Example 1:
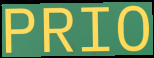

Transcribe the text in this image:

PRIO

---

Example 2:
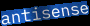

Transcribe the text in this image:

antisense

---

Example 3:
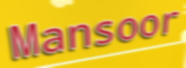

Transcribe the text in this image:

Mansoor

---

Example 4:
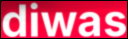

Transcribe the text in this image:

diwas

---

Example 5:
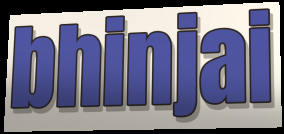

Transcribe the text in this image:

bhinjai